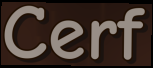
Cerf